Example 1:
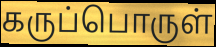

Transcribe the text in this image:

கருப்பொருள்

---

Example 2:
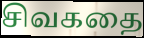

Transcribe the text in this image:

சிவகதை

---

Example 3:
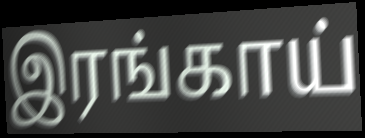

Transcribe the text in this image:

இரங்காய்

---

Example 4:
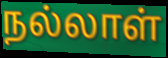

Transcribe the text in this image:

நல்லாள்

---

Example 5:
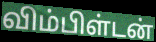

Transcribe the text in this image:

விம்பிள்டன்